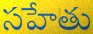
సహేతు